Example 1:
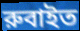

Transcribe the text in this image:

রুবাইত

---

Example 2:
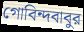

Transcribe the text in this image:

গোবিন্দবাবুর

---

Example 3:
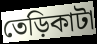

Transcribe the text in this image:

তেড়িকাটা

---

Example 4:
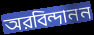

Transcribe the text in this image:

অরবিন্দানন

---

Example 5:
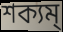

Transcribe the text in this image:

শক্যম্